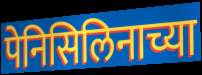
पेनिसिलिनाच्या